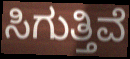
ಸಿಗುತ್ತಿವೆ